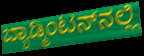
ಬ್ಯಾಡ್ಮಿಂಟನ್‌ನಲ್ಲಿ